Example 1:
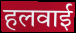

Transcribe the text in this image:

हलवाई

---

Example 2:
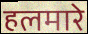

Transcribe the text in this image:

हलमारे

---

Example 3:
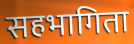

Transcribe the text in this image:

सहभागिता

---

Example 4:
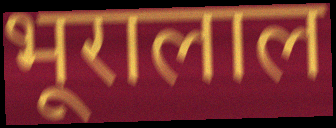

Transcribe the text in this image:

भूरालाल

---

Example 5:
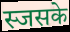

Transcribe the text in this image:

स्जसके